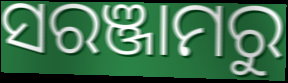
ସରଞ୍ଜାମରୁ